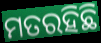
ମତରହିଛି